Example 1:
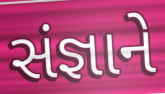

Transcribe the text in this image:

સંજ્ઞાને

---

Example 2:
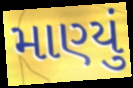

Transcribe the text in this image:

માણ્યું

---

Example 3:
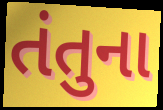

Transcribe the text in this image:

તંતુના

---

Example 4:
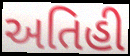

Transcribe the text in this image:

અતિહી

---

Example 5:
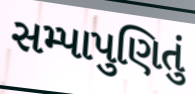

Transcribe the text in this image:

સમ્પાપુણિતું